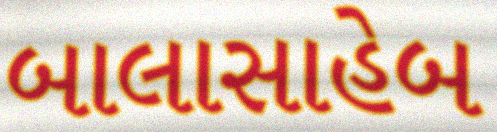
બાલાસાહેબ